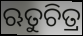
ଋତୁଚିତ୍ର